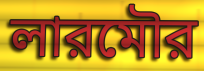
লারমৌর